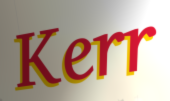
Kerr